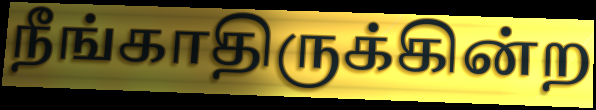
நீங்காதிருக்கின்ற